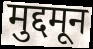
मुद्दमून